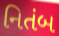
નિતંબ